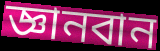
জ্ঞানবান